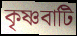
কৃষ্ণবাটি